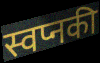
स्वप्नकी